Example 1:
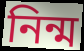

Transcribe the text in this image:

নিন্ম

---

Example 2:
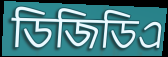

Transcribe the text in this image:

ডিজিডিএ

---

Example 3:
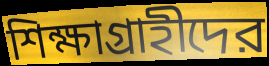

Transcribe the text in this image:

শিক্ষাগ্রাহীদের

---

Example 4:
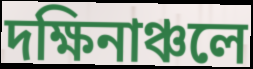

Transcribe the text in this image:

দক্ষিনাঞ্চলে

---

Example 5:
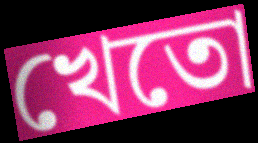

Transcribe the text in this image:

খেতো